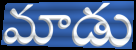
మాడు